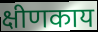
क्षीणकाय